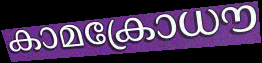
കാമക്രോധൗ